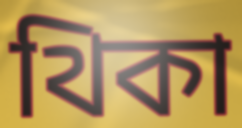
থিকা